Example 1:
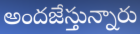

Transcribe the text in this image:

అందజేస్తున్నారు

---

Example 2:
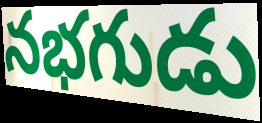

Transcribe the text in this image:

నభగుడు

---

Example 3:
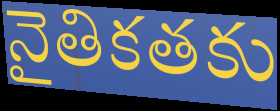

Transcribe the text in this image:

నైతికతకు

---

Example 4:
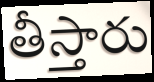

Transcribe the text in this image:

తీస్తారు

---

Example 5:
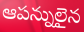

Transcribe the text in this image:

ఆపన్నులైన